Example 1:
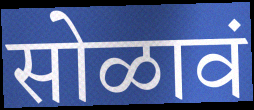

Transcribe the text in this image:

सोळावं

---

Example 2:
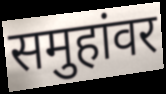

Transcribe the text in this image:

समुहांवर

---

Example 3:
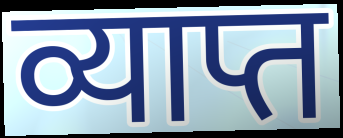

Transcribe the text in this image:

व्याप्त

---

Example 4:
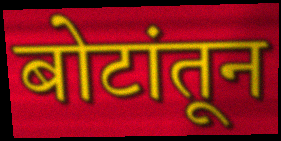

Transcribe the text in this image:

बोटांतून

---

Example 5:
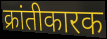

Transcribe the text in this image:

क्रांतीकारक